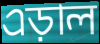
এড়াল